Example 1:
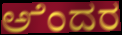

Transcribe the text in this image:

ಅೆಂದರ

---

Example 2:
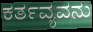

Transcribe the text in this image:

ಕರ್ತವ್ಯವನು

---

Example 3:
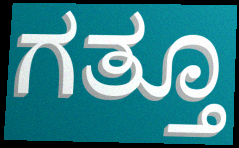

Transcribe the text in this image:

ಗತ್ತೂ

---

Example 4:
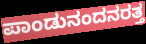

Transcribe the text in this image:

ಪಾಂಡುನಂದನರತ್ತ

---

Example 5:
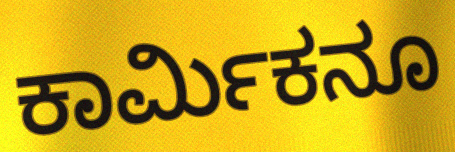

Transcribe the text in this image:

ಕಾರ್ಮಿಕನೂ